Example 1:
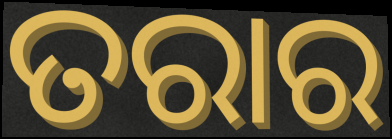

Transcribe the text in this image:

ତରାର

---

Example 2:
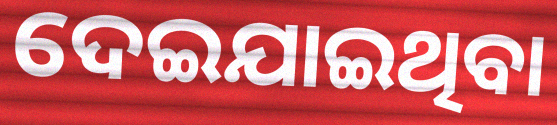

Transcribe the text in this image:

ଦେଇଯାଇଥିବା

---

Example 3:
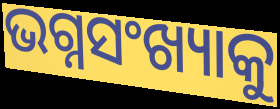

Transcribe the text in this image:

ଭଗ୍ନସଂଖ୍ୟାକୁ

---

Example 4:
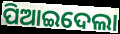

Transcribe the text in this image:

ପିଆଇଦେଲା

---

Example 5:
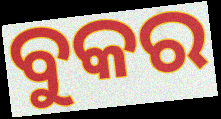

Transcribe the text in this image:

ବୁକର